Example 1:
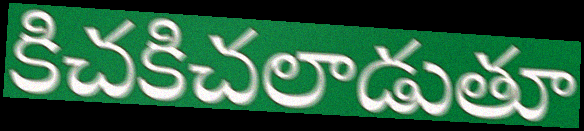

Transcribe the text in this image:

కిచకిచలాడుతూ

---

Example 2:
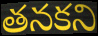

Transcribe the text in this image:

తనకని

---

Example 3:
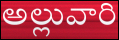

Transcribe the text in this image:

అల్లువారి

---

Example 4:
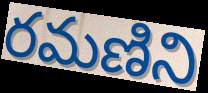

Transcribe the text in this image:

రమణిని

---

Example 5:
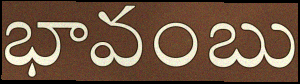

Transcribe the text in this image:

భావంబు